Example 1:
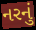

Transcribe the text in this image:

નરનું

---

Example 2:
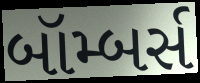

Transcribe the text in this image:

બૉમ્બર્સ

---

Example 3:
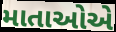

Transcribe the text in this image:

માતાઓએ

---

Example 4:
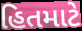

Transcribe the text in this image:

હિતમાટે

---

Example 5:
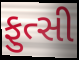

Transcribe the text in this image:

ફુત્સી